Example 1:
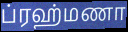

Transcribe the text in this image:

ப்ரஹ்மணா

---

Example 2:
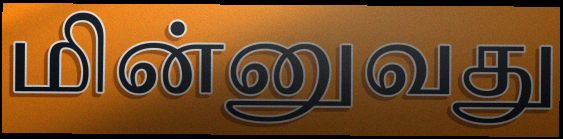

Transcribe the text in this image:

மின்னுவது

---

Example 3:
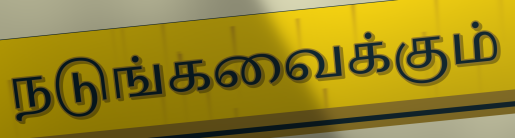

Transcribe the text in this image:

நடுங்கவைக்கும்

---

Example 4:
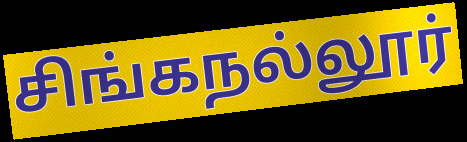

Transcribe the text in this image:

சிங்கநல்லூர்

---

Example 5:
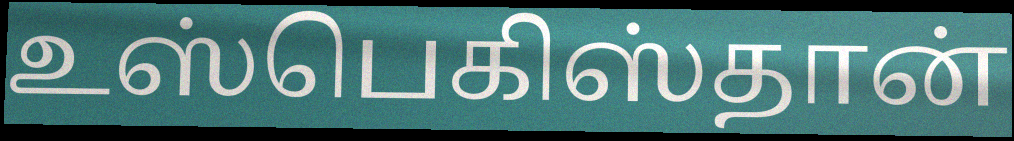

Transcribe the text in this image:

உஸ்பெகிஸ்தான்